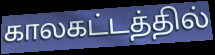
காலகட்டத்தில்